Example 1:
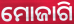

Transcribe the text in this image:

ମୋଜାଗି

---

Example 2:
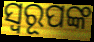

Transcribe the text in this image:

ସ୍ୱରୂପଙ୍କ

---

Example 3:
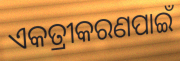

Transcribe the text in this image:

ଏକତ୍ରୀକରଣପାଇଁ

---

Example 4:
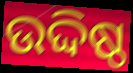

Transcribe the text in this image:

ଉଦ୍ଦିଷ୍ଠ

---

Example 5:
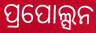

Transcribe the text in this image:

ପ୍ରପୋଲ୍ସନ